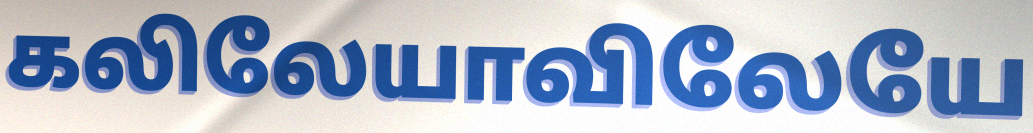
கலிலேயாவிலேயே